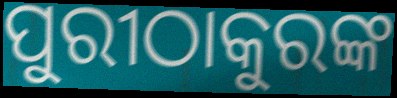
ପୁରୀଠାକୁରଙ୍କ